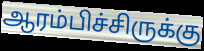
ஆரம்பிச்சிருக்கு